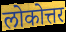
लोकोत्तर